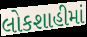
લોકશાહીમાં